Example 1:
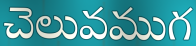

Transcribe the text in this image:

చెలువముగ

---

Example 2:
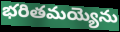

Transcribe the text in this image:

భరితమయ్యెను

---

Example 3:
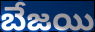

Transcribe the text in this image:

బేజయి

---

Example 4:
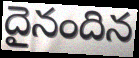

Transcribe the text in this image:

దైనందిన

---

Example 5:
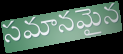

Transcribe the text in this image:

సమానమైన